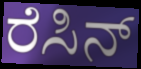
ರೆಸಿನ್